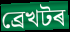
ব্ৰেখটৰ